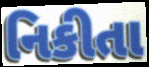
નિકીતા